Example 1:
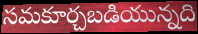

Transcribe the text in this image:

సమకూర్చబడియున్నది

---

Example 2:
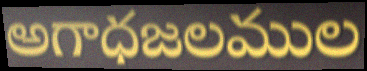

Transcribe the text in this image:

అగాధజలముల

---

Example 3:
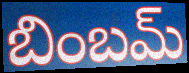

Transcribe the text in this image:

బింబమ్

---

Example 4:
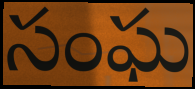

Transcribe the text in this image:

సంఘ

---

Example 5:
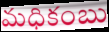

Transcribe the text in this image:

మధికంబు